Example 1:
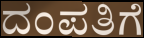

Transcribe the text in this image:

ದಂಪತಿಗೆ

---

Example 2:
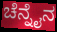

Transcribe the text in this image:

ಚೆನ್ನೈನ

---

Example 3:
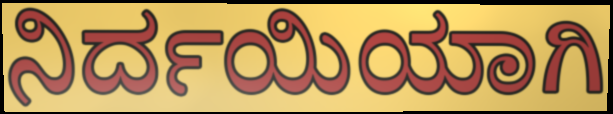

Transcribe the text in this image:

ನಿರ್ದಯಿಯಾಗಿ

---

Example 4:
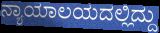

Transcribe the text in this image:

ನ್ಯಾಯಾಲಯದಲ್ಲಿದ್ದು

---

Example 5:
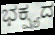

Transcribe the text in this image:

ಭಕ್ಷ್ಯದ